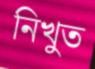
নিখুত